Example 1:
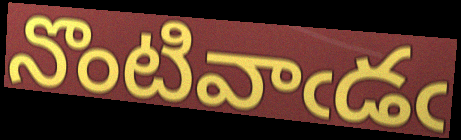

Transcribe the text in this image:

నొంటివాఁడఁ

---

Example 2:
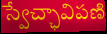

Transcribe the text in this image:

స్వేచ్ఛావిపణి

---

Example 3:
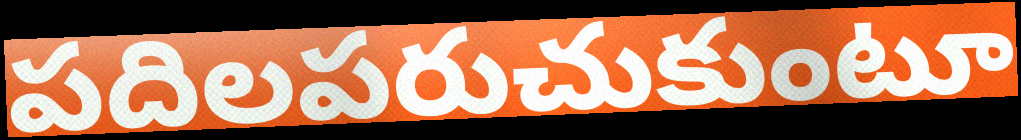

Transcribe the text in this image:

పదిలపరుచుకుంటూ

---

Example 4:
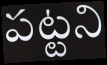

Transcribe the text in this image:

పట్టని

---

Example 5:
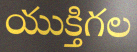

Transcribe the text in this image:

యుక్తిగల